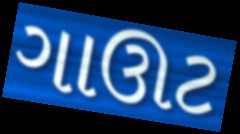
ગાઊટ